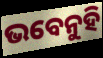
ଭବେନୁହି